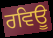
ਰਵਿਊ